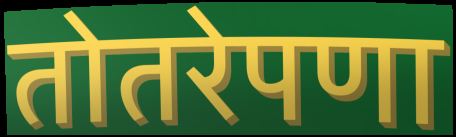
तोतरेपणा